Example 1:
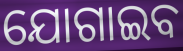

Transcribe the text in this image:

ଯୋଗାଇବ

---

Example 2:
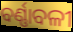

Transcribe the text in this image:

ବର୍ଣ୍ଣାବଳୀ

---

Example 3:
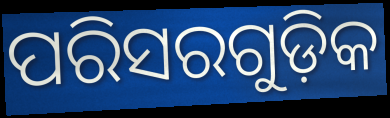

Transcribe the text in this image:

ପରିସରଗୁଡ଼ିକ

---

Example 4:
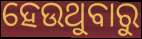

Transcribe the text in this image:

ହେଉଥୁବାରୁ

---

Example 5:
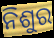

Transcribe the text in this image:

ନିଶୁର